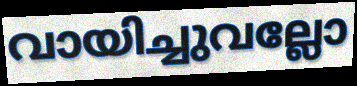
വായിച്ചുവല്ലോ